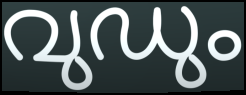
വുഡും